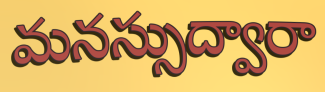
మనస్సుద్వారా